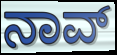
ನಾವ್